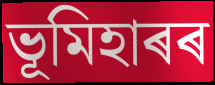
ভূমিহাৰৰ